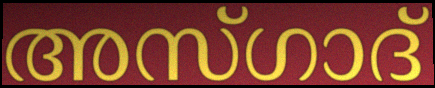
അസ്ഗാദ്